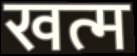
खत्म